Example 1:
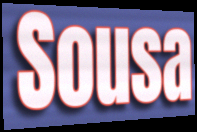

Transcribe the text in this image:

Sousa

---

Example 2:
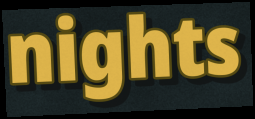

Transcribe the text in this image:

nights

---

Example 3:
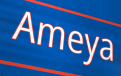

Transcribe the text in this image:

Ameya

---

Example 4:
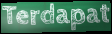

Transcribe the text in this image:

Terdapat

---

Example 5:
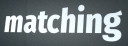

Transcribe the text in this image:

matching